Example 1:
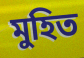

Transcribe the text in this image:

মুহিত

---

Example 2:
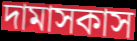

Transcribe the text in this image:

দামাসকাস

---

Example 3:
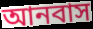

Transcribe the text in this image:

আনবাস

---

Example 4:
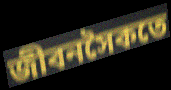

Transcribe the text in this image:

জীবনসৈকতে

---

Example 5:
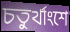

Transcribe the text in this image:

চতুর্থাংশে